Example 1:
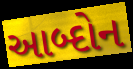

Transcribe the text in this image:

આબ્દોન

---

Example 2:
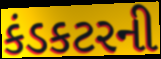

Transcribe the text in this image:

કંડકટરની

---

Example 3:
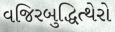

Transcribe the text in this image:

વજિરબુદ્ધિત્થેરો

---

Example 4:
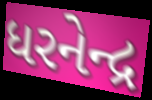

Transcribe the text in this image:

ધરનેન્દ્ર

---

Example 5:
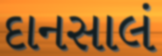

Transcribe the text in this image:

દાનસાલં